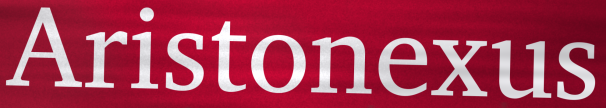
Aristonexus